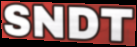
SNDT